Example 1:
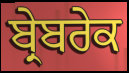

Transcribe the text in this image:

ਬ੍ਰੇਬਰੇਕ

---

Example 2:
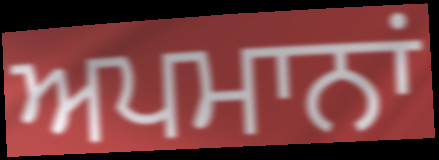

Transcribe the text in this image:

ਅਪਮਾਨਾਂ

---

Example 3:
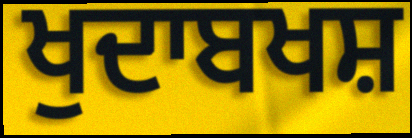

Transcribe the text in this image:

ਖੁਦਾਬਖਸ਼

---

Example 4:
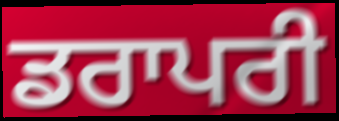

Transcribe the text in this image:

ਡਰਾਪਰੀ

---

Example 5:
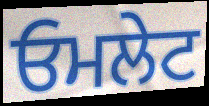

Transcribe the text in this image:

ਓਮਲੇਟ